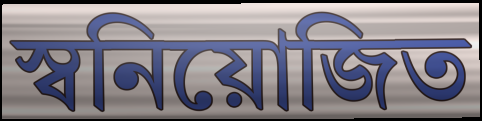
স্বনিয়োজিত